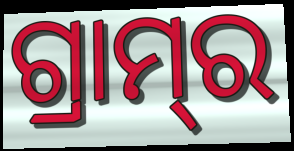
ଗ୍ରାମ୍‌ର